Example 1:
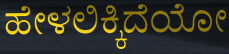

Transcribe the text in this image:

ಹೇಳಲಿಕ್ಕಿದೆಯೋ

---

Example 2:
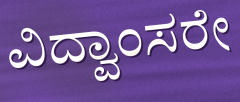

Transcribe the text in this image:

ವಿದ್ವಾಂಸರೇ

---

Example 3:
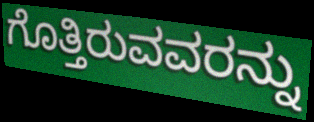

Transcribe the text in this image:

ಗೊತ್ತಿರುವವರನ್ನು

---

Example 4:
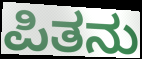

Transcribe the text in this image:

ಪಿತನು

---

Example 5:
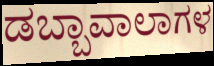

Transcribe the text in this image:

ಡಬ್ಬಾವಾಲಾಗಳ